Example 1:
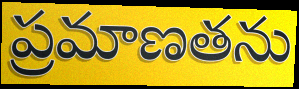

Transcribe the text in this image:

ప్రమాణతను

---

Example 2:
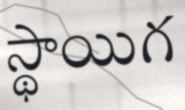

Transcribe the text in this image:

స్థాయిగ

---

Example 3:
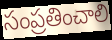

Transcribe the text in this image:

సంప్రతించాలి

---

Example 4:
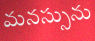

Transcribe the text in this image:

మనస్సును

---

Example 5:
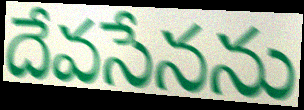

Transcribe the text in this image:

దేవసేనను